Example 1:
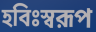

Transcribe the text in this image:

হবিঃস্বরূপ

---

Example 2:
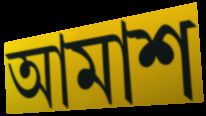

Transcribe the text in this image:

আমাশ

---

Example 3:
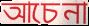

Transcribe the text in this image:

আচেনা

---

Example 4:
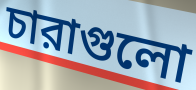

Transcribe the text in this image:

চারাগুলো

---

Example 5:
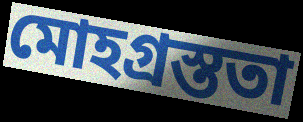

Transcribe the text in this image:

মোহগ্রস্ততা